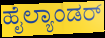
ಹೈಲ್ಯಾಂಡರ್